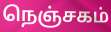
நெஞ்சகம்